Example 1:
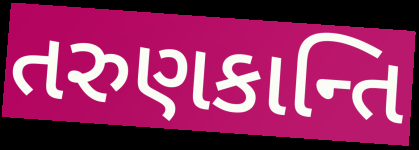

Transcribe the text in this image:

તરુણકાન્તિ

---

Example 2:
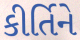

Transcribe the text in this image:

કીર્તિને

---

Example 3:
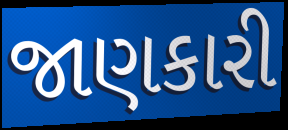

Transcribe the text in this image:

જાણકારી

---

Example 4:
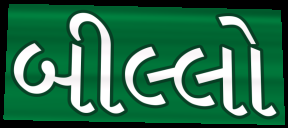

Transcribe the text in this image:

બીલ્લો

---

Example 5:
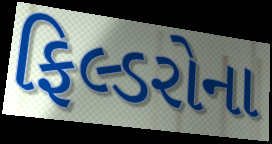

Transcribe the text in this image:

ફિલ્ડરોના